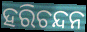
ହରିଚନ୍ଦନ